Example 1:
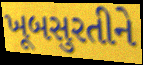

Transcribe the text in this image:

ખૂબસુરતીને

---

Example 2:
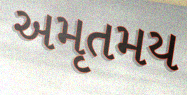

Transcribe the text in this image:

અમૃતમય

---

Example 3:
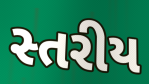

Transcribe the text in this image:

સ્તરીય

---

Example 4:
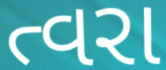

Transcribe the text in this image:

ત્વરા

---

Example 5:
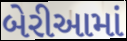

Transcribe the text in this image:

બેરીઆમાં